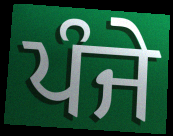
ਪੰਜੇ